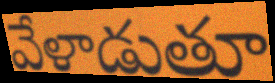
వేళాడుతూ